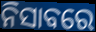
ନିସାବରେ